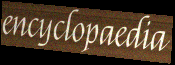
encyclopaedia